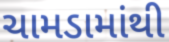
ચામડામાંથી